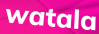
watala